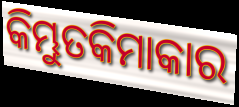
କିମ୍ଭୁତକିମାକାର